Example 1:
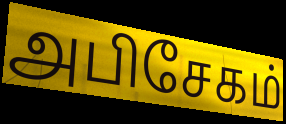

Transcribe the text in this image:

அபிசேகம்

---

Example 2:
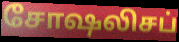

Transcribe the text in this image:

சோஷலிசப்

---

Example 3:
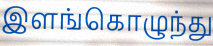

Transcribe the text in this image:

இளங்கொழுந்து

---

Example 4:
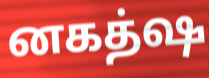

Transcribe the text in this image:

னகத்ஷ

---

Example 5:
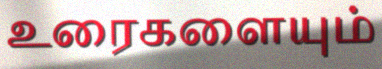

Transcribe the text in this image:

உரைகளையும்